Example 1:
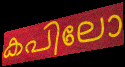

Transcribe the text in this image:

കപിലോ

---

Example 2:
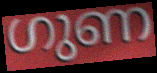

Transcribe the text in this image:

ഗുണ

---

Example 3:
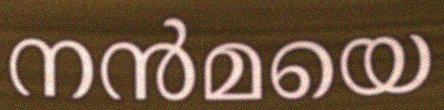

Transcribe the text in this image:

നൻമയെ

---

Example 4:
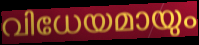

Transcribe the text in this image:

വിധേയമായും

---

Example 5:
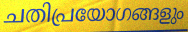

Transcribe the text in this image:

ചതിപ്രയോഗങ്ങളും